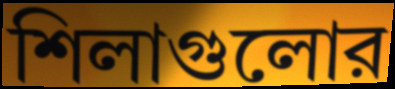
শিলাগুলোর